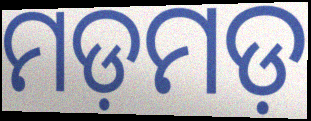
ମଡ଼ମଡ଼